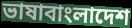
ভাষাবাংলাদেশ